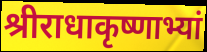
श्रीराधाकृष्णाभ्यां